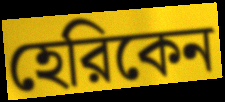
হেরিকেন